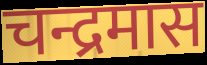
चन्द्रमास